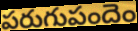
పరుగుపందెం